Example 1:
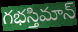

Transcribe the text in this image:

గభస్తిమాన్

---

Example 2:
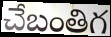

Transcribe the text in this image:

చేబంతిగ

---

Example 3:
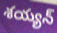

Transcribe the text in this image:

శయ్యన్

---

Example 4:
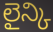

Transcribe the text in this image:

లైన్కి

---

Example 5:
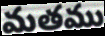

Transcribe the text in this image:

మతము